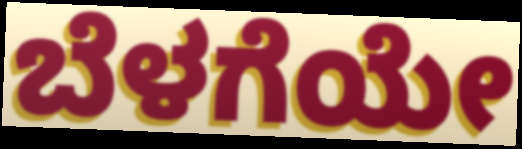
ಬೆಳಗೆಯೇ